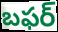
బఫర్